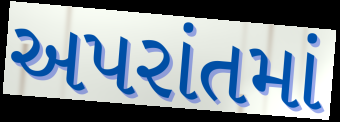
અપરાંતમાં